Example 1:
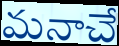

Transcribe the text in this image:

మనాచే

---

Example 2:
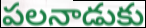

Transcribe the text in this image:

పలనాడుకు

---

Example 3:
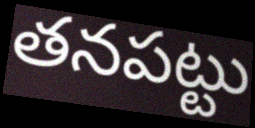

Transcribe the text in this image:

తనపట్టు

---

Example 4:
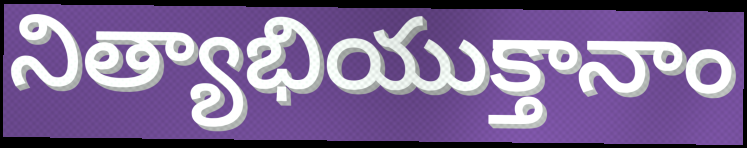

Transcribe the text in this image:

నిత్యాభియుక్తానాం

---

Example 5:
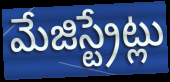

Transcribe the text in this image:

మేజిస్ట్రేట్లు